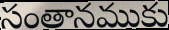
సంతానముకు